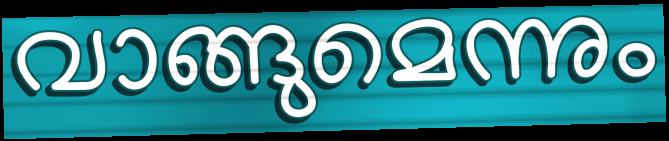
വാങ്ങുമെന്നും